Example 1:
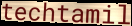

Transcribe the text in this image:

techtamil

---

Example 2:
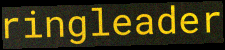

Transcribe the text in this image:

ringleader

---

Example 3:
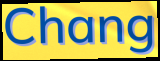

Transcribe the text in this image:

Chang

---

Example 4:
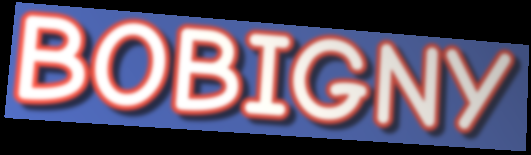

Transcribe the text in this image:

BOBIGNY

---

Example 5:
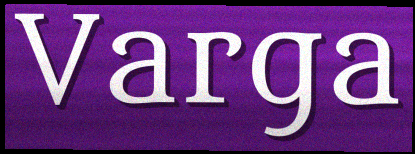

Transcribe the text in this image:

Varga